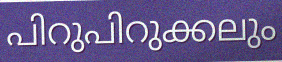
പിറുപിറുക്കലും